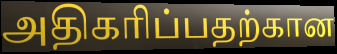
அதிகரிப்பதற்கான